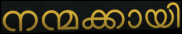
നന്മക്കായി